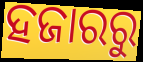
ହଜାରରୁ